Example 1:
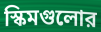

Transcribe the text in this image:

স্কিমগুলোর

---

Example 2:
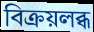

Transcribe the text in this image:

বিক্রয়লব্ধ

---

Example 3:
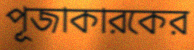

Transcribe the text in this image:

পূজাকারকের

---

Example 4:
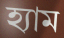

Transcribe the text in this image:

হ্যাম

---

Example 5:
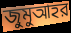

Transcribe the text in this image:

জুমুআহর